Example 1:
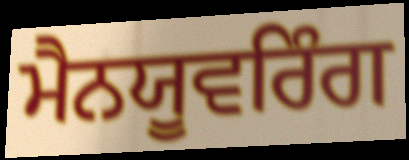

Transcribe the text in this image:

ਮੈਨਯੂਵਰਿੰਗ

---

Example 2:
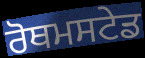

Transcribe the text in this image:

ਰੋਥਮਸਟੇਡ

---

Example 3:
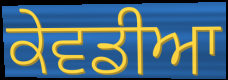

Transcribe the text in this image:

ਕੇਵਡੀਆ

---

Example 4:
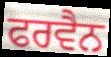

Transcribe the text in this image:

ਫਰਵੈਨ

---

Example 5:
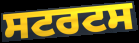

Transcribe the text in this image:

ਸਟਰਟਸ